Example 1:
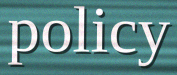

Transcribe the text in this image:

policy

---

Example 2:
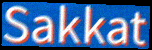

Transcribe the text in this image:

Sakkat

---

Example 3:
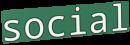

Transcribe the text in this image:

social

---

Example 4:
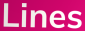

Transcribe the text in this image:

Lines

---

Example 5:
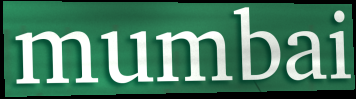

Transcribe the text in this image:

mumbai